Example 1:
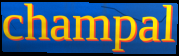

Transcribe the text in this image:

champal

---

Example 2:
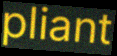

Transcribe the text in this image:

pliant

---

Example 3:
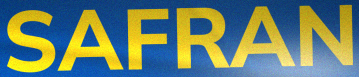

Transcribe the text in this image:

SAFRAN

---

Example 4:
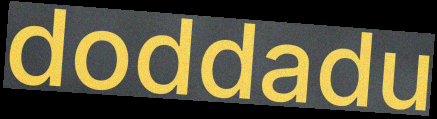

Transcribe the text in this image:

doddadu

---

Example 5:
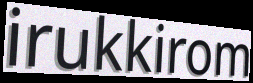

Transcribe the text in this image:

irukkirom